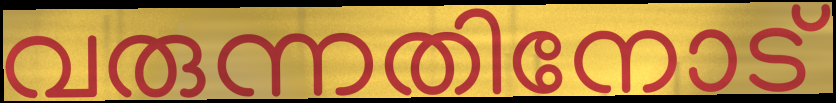
വരുന്നതിനോട്